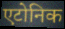
एटोनिक